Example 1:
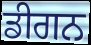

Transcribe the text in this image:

ਡੀਗਨ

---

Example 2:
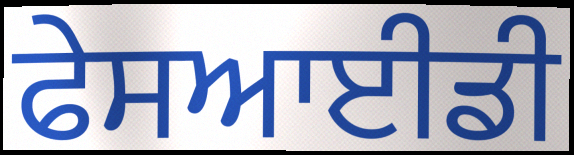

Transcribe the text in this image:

ਫੇਸਆਈਡੀ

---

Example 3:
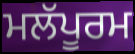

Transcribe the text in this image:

ਮਲੱਪੂਰਮ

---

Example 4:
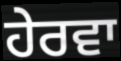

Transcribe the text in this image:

ਹੇਰਵਾ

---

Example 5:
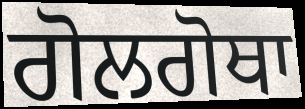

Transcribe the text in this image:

ਗੋਲਗੋਥਾ